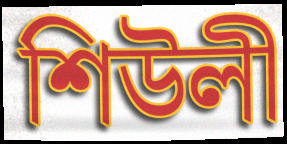
শিউলী